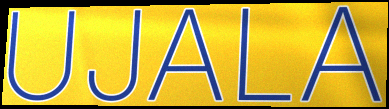
UJALA